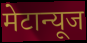
मेटान्यूज